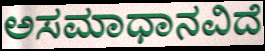
ಅಸಮಾಧಾನವಿದೆ